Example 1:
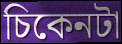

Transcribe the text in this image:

চিকেনটা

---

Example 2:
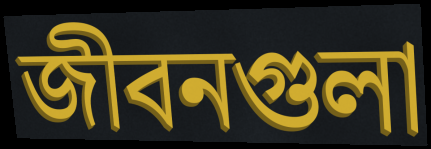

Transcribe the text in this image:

জীবনগুলা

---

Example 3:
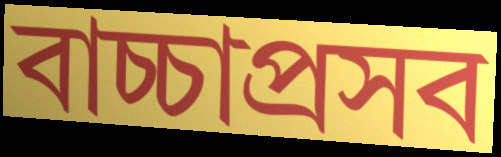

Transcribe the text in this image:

বাচ্চাপ্রসব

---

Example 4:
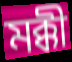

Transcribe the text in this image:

মক্কী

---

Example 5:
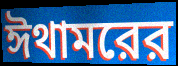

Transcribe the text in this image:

ঈথামরের